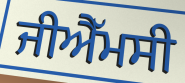
ਜੀਐੱਮਸੀ